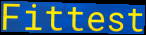
Fittest